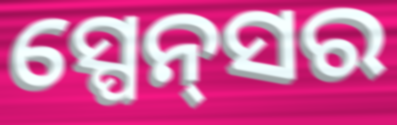
ସ୍ପେନ୍‌ସର